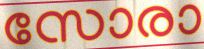
സോരാ